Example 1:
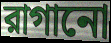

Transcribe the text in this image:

রাগানো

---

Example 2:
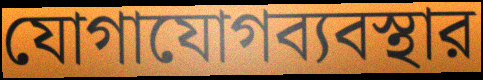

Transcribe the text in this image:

যোগাযোগব্যবস্থার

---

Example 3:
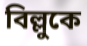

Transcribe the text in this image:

বিল্লুকে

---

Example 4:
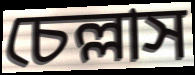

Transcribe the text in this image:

চেল্লাস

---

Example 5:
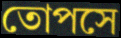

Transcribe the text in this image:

তোপসে